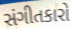
સંગીતકારો